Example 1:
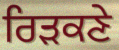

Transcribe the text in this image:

ਰਿੜਕਣੇ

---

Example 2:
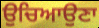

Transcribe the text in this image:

ਉਚਿਆਉਣਾ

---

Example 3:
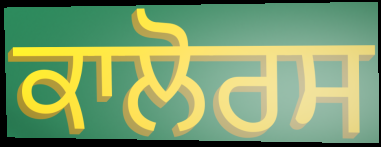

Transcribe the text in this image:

ਕਾਲੋਰਸ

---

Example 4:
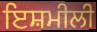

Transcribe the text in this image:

ਇਸ਼ਮੀਲੀ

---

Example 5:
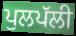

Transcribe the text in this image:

ਪੁਲਪੱਲੀ